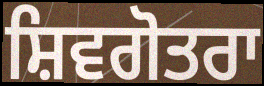
ਸ਼ਿਵਗੋਤਰਾ